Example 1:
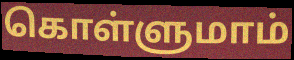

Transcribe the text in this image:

கொள்ளுமாம்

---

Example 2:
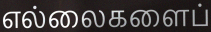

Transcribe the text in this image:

எல்லைகளைப்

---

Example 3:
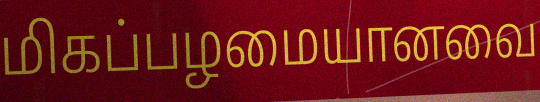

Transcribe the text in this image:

மிகப்பழமையானவை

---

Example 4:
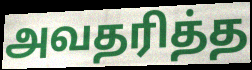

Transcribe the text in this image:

அவதரித்த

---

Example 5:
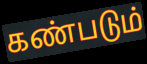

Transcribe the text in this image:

கண்படும்